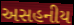
અસહનીય